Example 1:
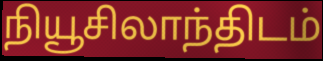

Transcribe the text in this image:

நியூசிலாந்திடம்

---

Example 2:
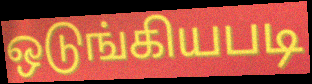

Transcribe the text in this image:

ஒடுங்கியபடி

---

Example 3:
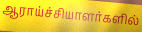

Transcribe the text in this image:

ஆராய்ச்சியாளர்களில்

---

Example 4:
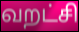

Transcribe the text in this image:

வறட்சி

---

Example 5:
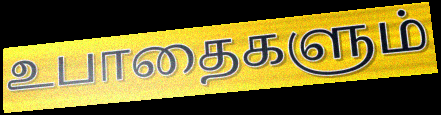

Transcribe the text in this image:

உபாதைகளும்